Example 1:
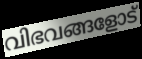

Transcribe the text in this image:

വിഭവങ്ങളോട്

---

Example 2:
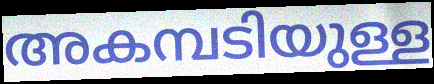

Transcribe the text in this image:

അകമ്പടിയുള്ള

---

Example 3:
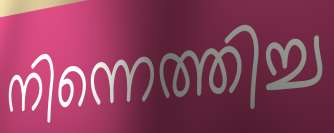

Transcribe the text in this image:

നിന്നെത്തിച്ച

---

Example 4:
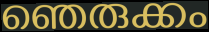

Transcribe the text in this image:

ഞെരുക്കം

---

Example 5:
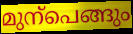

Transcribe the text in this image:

മുന്പെങ്ങും